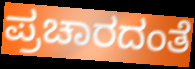
ಪ್ರಚಾರದಂತೆ